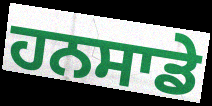
ਹਨਸਾਡੇ